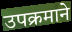
उपक्रमाने